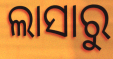
ଲାସାରୁ